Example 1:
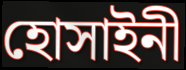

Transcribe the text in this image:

হোসাইনী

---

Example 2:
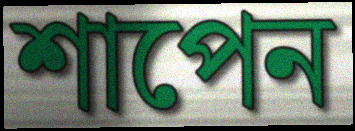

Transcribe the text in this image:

শাপেন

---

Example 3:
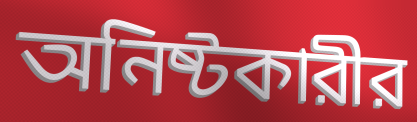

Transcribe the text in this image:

অনিষ্টকারীর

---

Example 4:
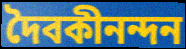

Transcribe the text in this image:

দৈবকীনন্দন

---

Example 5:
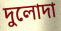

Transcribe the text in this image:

দুলোদা